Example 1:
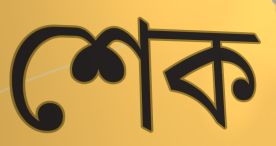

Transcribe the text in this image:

শেক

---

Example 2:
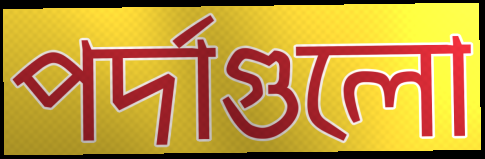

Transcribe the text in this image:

পর্দাগুলো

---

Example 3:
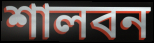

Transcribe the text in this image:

শালবন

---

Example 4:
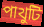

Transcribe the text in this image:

পাথুটি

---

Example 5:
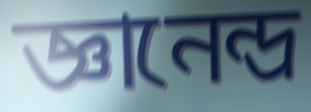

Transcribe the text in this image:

জ্ঞানেন্দ্র